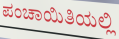
ಪಂಚಾಯಿತಿಯಲ್ಲಿ